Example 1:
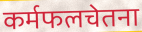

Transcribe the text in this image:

कर्मफलचेतना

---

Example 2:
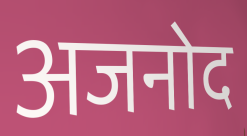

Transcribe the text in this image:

अजनोद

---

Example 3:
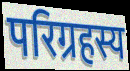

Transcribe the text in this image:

परिग्रहस्य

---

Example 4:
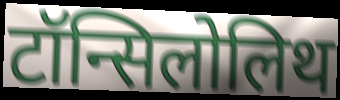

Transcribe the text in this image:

टॉन्सिलोलिथ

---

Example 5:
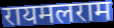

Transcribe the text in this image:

रायमलराम